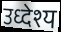
उध्देश्य